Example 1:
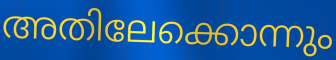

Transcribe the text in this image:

അതിലേക്കൊന്നും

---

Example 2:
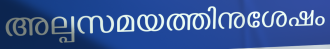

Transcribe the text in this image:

അല്പസമയത്തിനുശേഷം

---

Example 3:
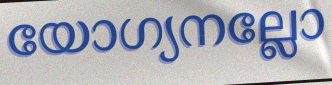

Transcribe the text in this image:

യോഗ്യനല്ലോ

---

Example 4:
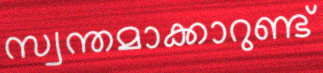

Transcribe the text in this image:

സ്വന്തമാക്കാറുണ്ട്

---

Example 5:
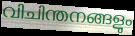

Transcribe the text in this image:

വിചിന്തനങ്ങളും